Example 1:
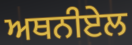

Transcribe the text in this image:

ਅਥਨੀਏਲ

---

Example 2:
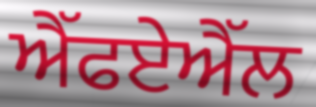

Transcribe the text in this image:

ਐੱਫਏਐੱਲ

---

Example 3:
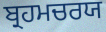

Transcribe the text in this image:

ਬ੍ਰਹਮਚਰਯ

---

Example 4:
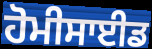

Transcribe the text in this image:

ਹੋਮੀਸਾਈਡ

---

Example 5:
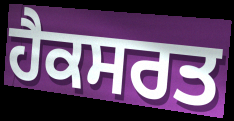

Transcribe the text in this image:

ਹੈਕਸਰਤ